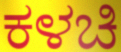
ಕಳಚಿ